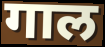
गाल